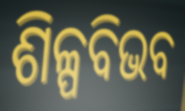
ଶିଳ୍ପବିଭବ